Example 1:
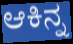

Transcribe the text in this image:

ಆಕಿನ್ನ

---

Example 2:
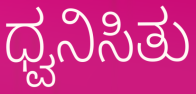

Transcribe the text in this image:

ಧ್ವನಿಸಿತು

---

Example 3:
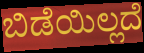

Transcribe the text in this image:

ಬಿಡೆಯಿಲ್ಲದೆ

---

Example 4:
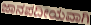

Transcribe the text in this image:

ಜಾನಪದೀಯವಾಗಿ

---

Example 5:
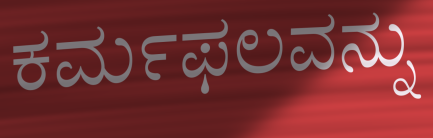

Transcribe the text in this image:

ಕರ್ಮಫಲವನ್ನು